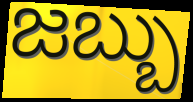
జబ్బు